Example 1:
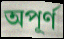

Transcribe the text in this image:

অপূর্ণ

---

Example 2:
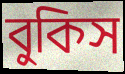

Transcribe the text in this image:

বুকিস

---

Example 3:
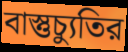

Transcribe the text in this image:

বাস্তুচ্যুতির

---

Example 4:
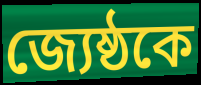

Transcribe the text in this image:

জ্যেষ্ঠকে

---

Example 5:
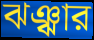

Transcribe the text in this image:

ঝঞ্ঝার